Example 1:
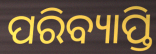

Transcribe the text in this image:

ପରିବ୍ୟାପ୍ତି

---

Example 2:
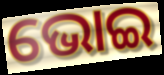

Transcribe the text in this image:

ଭୋଇ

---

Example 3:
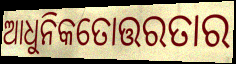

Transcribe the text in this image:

ଆଧୁନିକତୋତ୍ତରତାର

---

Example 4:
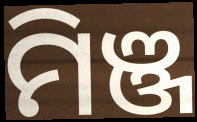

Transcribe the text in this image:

ମିଞ୍ଜ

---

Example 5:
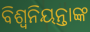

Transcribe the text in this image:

ବିଶ୍ବନିୟନ୍ତାଙ୍କ